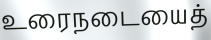
உரைநடையைத்